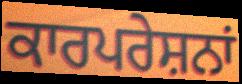
ਕਾਰਪਰੇਸ਼ਨਾਂ